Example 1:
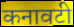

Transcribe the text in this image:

कनावटी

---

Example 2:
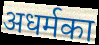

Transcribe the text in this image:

अधर्मका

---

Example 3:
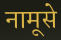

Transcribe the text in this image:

नामूसे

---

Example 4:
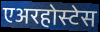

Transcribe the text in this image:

एअरहोस्टेस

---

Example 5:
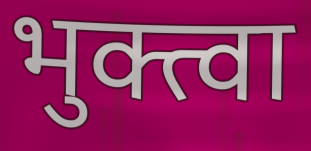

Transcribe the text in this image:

भुक्त्वा